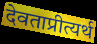
देवताप्रीत्यर्थ